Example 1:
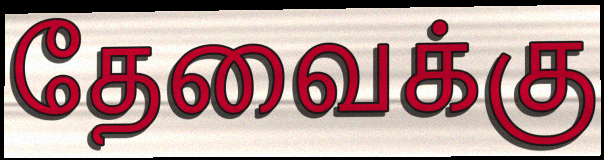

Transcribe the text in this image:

தேவைக்கு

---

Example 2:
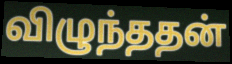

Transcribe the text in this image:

விழுந்ததன்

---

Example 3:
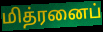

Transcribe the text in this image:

மித்ரனைப்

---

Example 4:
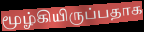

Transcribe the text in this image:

மூழ்கியிருப்பதாக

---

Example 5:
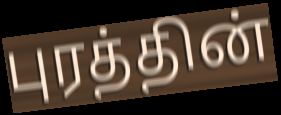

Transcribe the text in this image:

புரத்தின்